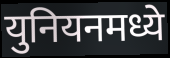
युनियनमध्ये